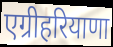
एग्रीहरियाणा